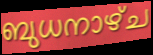
ബുധനാഴ്‌ച